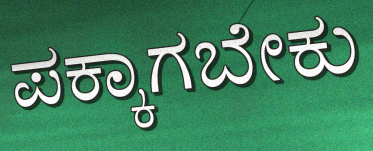
ಪಕ್ಕಾಗಬೇಕು